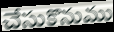
చేసుకొనుము